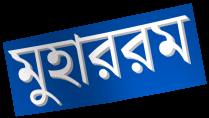
মুহাররম